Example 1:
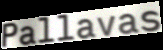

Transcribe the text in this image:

Pallavas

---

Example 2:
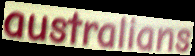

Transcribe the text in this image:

australians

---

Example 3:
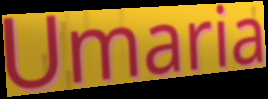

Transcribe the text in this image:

Umaria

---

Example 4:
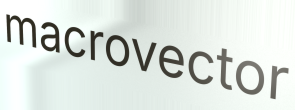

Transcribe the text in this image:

macrovector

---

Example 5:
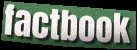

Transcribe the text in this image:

factbook